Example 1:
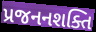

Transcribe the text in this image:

પ્રજનનશક્તિ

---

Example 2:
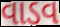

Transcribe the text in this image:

વાડવ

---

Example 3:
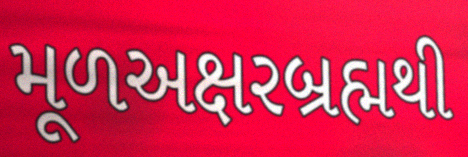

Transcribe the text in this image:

મૂળઅક્ષરબ્રહ્મથી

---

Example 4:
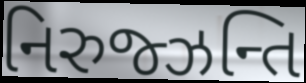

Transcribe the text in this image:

નિરુજ્ઝન્તિ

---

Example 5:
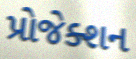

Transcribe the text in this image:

પ્રોજેક્શન